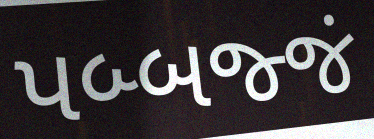
પબ્બજ્જં